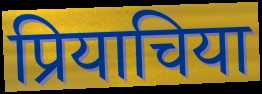
प्रियाचिया